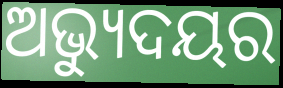
ଅଭ୍ୟୁଦୟର